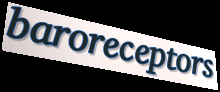
baroreceptors